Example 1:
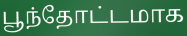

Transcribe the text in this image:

பூந்தோட்டமாக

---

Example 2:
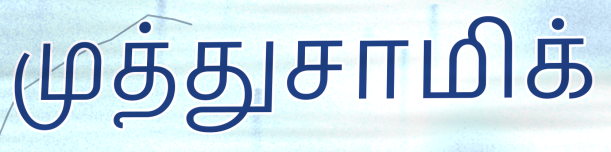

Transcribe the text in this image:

முத்துசாமிக்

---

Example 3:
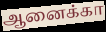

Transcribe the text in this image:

ஆனைக்கா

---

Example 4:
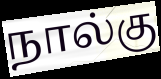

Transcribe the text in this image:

நால்கு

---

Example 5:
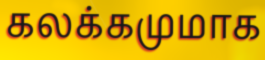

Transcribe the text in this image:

கலக்கமுமாக